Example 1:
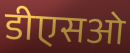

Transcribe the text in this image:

डीएसओ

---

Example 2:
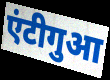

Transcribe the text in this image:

एंटीगुआ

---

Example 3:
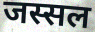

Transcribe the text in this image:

जस्सल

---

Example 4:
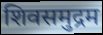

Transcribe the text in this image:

शिवसमुद्रम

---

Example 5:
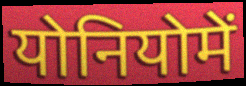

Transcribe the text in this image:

योनियोमें